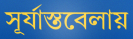
সূর্যাস্তবেলায়